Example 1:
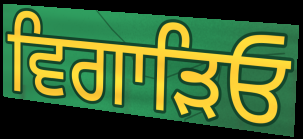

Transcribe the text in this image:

ਵਿਗਾੜਿਓ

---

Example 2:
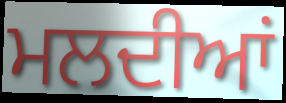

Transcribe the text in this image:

ਮਲਦੀਆਂ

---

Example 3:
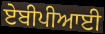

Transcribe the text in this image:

ਏਬੀਪੀਆਈ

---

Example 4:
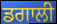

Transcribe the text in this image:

ਡਗਾਲੀ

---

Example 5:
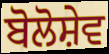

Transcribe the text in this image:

ਬੋਲੋਸ਼ੇਵ